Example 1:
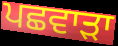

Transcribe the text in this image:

ਪਛਵਾੜਾ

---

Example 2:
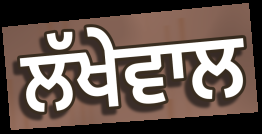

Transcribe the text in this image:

ਲੱਖੇਵਾਲ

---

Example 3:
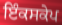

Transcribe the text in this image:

ਇੰਕਸਕੇਪ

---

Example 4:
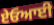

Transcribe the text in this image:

ਏਓਆਈ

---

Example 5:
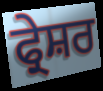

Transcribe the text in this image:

ਫ੍ਰੇਸ਼ਰ